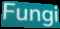
Fungi